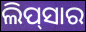
ଲିପ୍‌ସାର